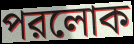
পরলোক